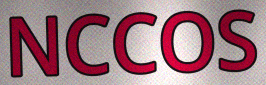
NCCOS